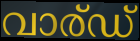
വാര്ഡ്